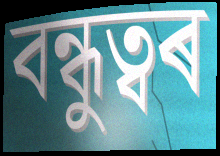
বন্ধুত্বৰ